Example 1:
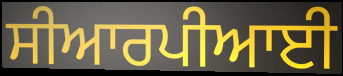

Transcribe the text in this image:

ਸੀਆਰਪੀਆਈ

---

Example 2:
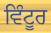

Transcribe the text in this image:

ਵਿੰਟੂਰ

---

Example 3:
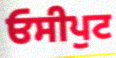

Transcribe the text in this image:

ਓਸੀਪੁਟ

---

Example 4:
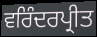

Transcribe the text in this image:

ਵਰਿੰਦਰਪ੍ਰੀਤ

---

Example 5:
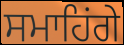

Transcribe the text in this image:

ਸਮਾਹਿਂਗੇ